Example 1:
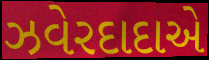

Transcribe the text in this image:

ઝવેરદાદાએ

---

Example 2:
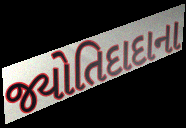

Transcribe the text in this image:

જ્યોતિદાદાના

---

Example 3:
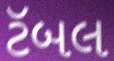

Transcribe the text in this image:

ટૅબલ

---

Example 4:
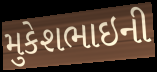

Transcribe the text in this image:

મુકેશભાઇની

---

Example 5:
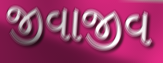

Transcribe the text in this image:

જીવાજીવ